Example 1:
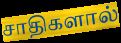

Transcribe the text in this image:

சாதிகளால்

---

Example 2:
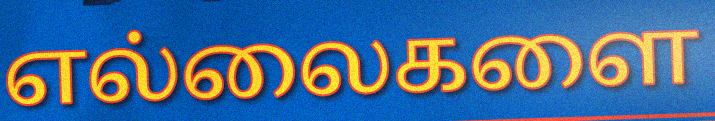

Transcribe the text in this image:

எல்லைகளை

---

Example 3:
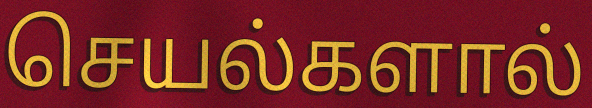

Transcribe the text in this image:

செயல்களால்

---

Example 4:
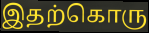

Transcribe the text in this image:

இதற்கொரு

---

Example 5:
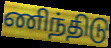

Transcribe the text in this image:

ணிந்திடு